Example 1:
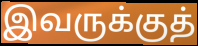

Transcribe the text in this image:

இவருக்குத்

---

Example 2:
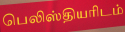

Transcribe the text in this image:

பெலிஸ்தியரிடம்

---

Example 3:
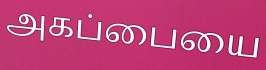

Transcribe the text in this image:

அகப்பையை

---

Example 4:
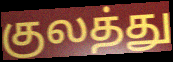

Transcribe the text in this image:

குலத்து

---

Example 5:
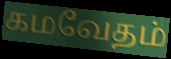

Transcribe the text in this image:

கமவேதம்